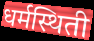
धर्मस्थिती